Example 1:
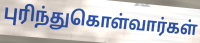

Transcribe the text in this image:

புரிந்துகொள்வார்கள்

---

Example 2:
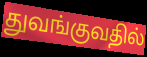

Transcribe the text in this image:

துவங்குவதில்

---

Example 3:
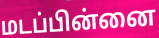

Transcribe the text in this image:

மடப்பின்னை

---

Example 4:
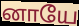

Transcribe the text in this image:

னாயே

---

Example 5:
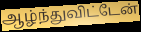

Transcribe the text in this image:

ஆழ்ந்துவிட்டேன்